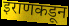
इराणकडून